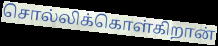
சொல்லிக்கொள்கிறான்